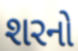
શરનો